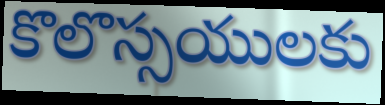
కొలొస్సయులకు